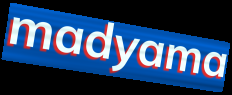
madyama